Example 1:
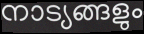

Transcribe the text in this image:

നാട്യങ്ങളും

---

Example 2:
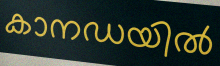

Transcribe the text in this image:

കാനഡയിൽ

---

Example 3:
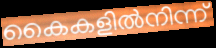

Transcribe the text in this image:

കൈകളിൽനിന്ന്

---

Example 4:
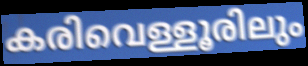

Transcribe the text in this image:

കരിവെള്ളൂരിലും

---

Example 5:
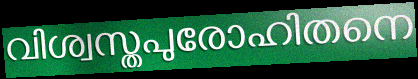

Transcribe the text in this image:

വിശ്വസ്തപുരോഹിതനെ